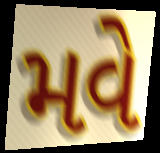
મવે